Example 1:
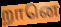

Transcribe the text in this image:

றானெ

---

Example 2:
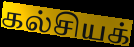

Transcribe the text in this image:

கல்சியக்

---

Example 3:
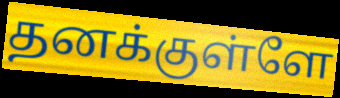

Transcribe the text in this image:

தனக்குள்ளே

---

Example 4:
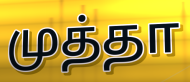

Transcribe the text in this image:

முத்தா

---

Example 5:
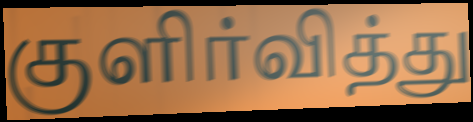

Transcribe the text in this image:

குளிர்வித்து